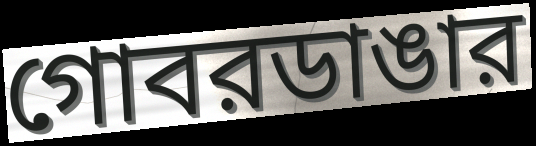
গোবরডাঙার